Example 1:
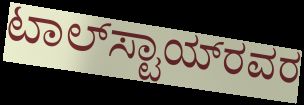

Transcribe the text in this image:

ಟಾಲ್‌ಸ್ಟಾಯ್‌ರವರ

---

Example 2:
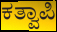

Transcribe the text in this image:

ಕತ್ವಾಪಿ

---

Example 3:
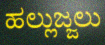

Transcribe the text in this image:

ಹಲ್ಲುಜ್ಜಲು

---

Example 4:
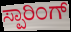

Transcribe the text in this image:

ಸ್ಪಾರಿಂಗ್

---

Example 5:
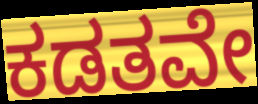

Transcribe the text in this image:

ಕಡತವೇ